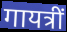
गायत्रीं